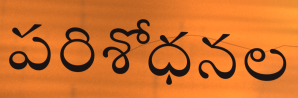
పరిశోధనల